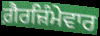
ਗ਼ੈਰਜ਼ਿੰਮੇਵਾਰ